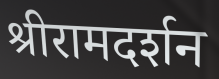
श्रीरामदर्शन